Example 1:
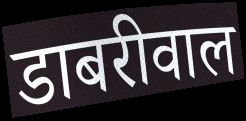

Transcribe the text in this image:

डाबरीवाल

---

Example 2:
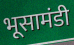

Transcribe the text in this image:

भूसामंडी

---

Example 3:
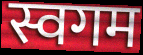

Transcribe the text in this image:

स्वगम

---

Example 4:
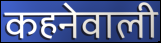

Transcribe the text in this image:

कहनेवाली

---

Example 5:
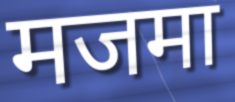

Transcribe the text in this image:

मजमा